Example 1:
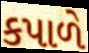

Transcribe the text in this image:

કપાળે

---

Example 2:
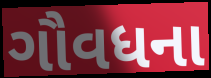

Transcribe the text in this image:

ગૌવધના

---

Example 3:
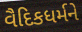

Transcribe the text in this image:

વૈદિકધર્મને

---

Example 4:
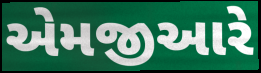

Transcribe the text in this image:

એમજીઆરે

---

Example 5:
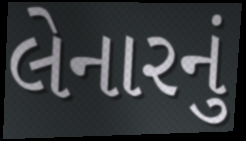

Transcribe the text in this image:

લેનારનું